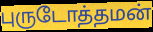
புருடோத்தமன்